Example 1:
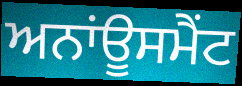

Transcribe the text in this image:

ਅਨਾਂਊਸਮੈਂਟ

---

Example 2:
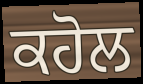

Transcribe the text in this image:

ਕਹੋਲ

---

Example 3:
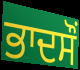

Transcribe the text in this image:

ਭਾਦਸੌਂ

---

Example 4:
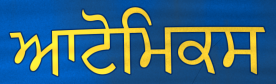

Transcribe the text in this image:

ਆਟੋਮਿਕਸ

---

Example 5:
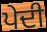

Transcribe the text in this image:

ਪੇਦੀ